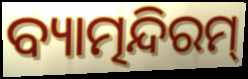
ବ୍ୟାତ୍ମନ୍ଦିରମ୍